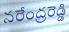
నరేంద్రరెడ్డి